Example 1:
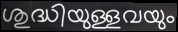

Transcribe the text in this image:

ശുദ്ധിയുള്ളവയും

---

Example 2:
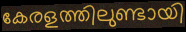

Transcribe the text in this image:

കേരളത്തിലുണ്ടായി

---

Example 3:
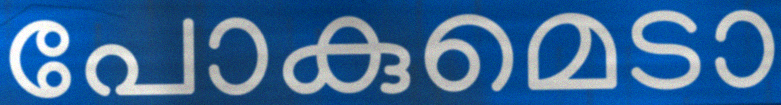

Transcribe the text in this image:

പോകുമെടാ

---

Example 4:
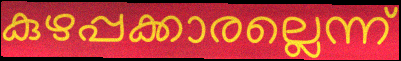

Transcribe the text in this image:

കുഴപ്പക്കാരല്ലെന്ന്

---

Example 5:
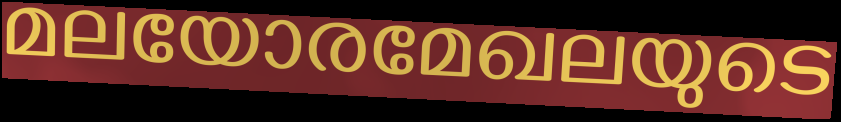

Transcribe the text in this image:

മലയോരമേഖലയുടെ